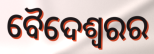
ବୈଦେଶ୍ୱରର